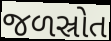
જળસ્રોત